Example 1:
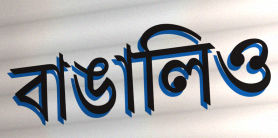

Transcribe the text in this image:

বাঙালিও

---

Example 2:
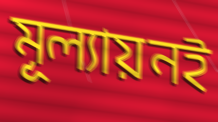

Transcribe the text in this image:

মূল্যায়নই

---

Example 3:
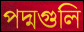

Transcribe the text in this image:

পদ্মগুলি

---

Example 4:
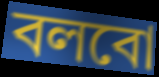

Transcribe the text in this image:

বলবো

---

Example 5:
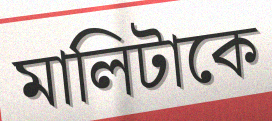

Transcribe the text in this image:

মালিটাকে